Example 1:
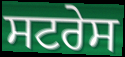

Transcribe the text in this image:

ਸਟਰੇਸ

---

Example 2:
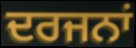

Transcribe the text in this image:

ਦਰਜਨਾਂ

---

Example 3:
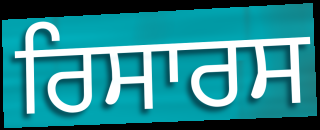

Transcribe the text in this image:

ਰਿਸਾਰਸ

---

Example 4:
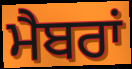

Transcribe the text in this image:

ਮੈਬਰਾਂ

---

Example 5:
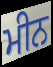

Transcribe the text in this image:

ਮੀਨ